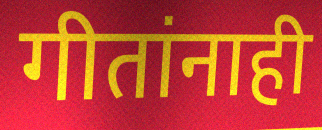
गीतांनाही